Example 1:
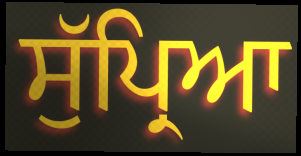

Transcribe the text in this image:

ਸੁੱਪ੍ਰਿਆ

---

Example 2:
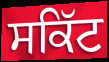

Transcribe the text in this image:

ਸਕਿੱਟ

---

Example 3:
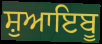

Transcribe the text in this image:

ਸ਼ੁਆਇਬੂ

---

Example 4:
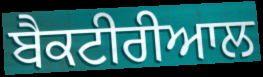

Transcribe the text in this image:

ਬੈਕਟੀਰੀਆਲ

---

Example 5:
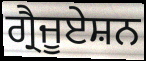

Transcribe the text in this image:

ਗ੍ਰੈਜੂਏਸ਼ਨ